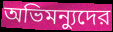
অভিমন্যুদের